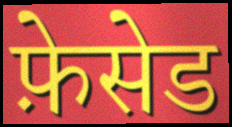
फ़ेसेड